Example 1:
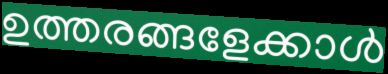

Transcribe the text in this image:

ഉത്തരങ്ങളേക്കാൾ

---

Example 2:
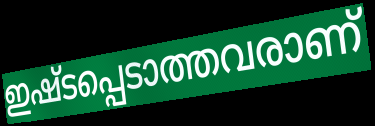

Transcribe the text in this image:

ഇഷ്ടപ്പെടാത്തവരാണ്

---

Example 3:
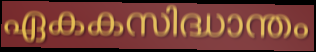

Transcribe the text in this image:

ഏകകസിദ്ധാന്തം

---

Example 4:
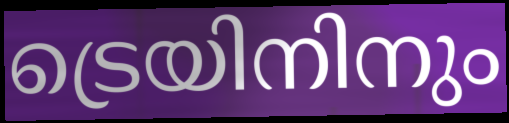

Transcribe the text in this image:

ട്രെയിനിനും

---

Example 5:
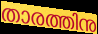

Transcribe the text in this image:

താരത്തിനു